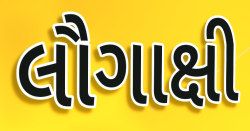
લૌગાક્ષી